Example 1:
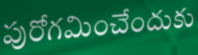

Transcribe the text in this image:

పురోగమించేందుకు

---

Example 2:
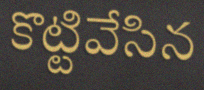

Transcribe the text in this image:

కొట్టివేసిన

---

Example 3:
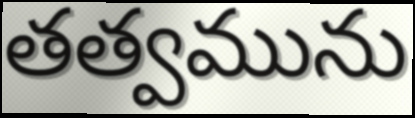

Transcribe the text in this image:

తత్వమును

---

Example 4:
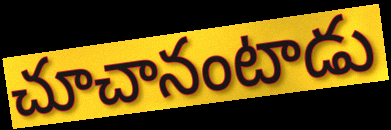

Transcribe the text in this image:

చూచానంటాడు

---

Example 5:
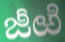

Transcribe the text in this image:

జీఱి